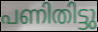
പണിതിട്ടു